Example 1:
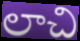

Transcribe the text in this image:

లాచి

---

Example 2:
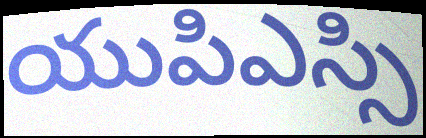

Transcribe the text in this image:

యుపిఎస్సి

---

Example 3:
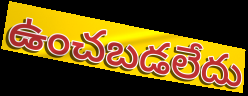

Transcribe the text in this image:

ఉంచబడలేదు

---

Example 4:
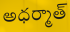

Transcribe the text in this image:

అధర్మాత్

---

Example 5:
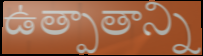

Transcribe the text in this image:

ఉత్పాతాన్ని